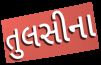
તુલસીના